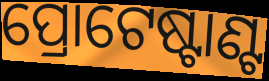
ପ୍ରୋଟେଷ୍ଟାଣ୍ଟ